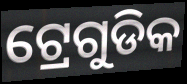
ଟ୍ରେଗୁଡିକ